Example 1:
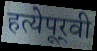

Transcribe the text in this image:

हत्येपूर्वी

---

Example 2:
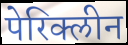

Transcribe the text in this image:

पेरिक्लीन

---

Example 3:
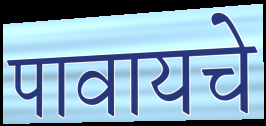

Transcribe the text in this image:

पावायचे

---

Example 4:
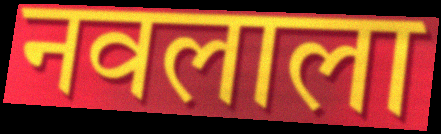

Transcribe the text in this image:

नवलाला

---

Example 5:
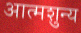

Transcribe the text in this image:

आत्मशुन्य